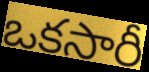
ఒకసారీ